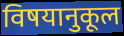
विषयानुकूल